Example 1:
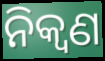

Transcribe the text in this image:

ନିକ୍ୱଣ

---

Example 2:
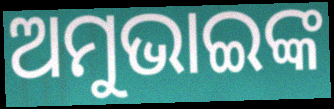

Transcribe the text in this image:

ଅମୁଭାଇଙ୍କ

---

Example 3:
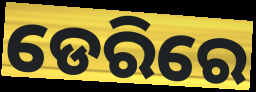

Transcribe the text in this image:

ଡେରିରେ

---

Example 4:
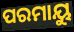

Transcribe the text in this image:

ପରମାୟୁ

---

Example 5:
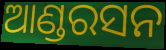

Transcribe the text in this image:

ଆଣ୍ଡରସନ